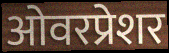
ओवरप्रेशर